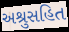
અશ્રુસહિત